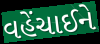
વહેંચાઈને